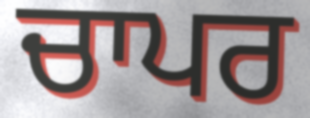
ਚਾਪਰ